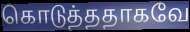
கொடுத்ததாகவே